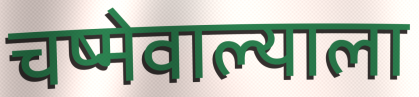
चष्मेवाल्याला